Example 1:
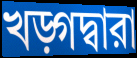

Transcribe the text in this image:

খড়্গদ্বারা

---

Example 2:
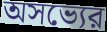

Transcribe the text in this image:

অসভ্যের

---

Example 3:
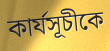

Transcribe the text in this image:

কার্যসূচীকে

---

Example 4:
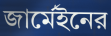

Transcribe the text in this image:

জার্মেইনের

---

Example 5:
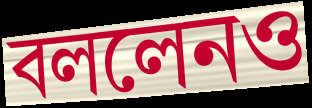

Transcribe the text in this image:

বললেনও